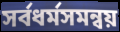
সর্বধর্মসমন্বয়